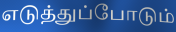
எடுத்துப்போடும்